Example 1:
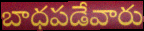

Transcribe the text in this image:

బాధపడేవారు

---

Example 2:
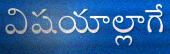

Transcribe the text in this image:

విషయాల్లాగే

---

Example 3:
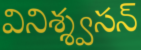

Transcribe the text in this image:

వినిశ్శ్వసన్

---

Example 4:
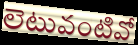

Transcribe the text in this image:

లెటువంటివో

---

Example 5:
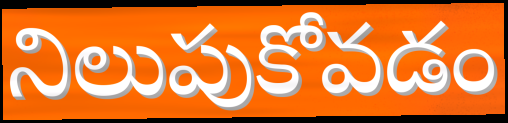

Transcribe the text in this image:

నిలుపుకోవడం